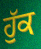
ਹੁੱਕ